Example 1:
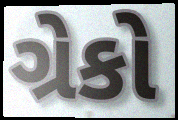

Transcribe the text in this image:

ગ્રેકો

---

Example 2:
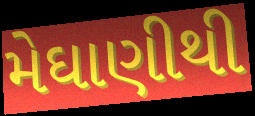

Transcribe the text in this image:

મેઘાણીથી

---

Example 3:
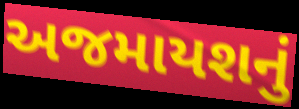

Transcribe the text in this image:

અજમાયશનું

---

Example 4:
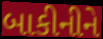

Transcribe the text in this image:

બાકીનીને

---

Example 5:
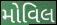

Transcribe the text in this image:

મોવિલ